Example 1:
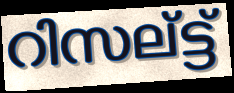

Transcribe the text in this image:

റിസല്ട്ട്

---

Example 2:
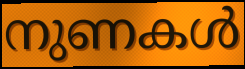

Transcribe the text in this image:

നുണകൾ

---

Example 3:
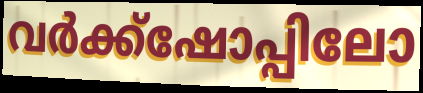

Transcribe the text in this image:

വർക്ക്ഷോപ്പിലോ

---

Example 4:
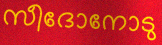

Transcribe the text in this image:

സീദോനോടു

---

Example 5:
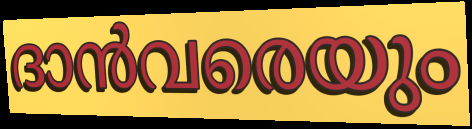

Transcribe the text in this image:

ദാൻവരെയും